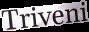
Triveni